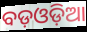
ବଡ଼ଓଡ଼ିଆ